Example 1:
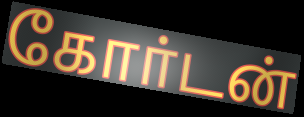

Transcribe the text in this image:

கோர்டன்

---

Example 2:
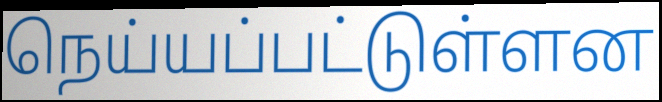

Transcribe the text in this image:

நெய்யப்பட்டுள்ளன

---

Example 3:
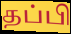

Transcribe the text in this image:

தப்பி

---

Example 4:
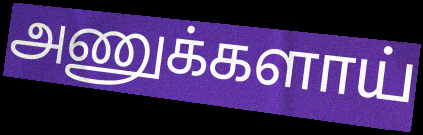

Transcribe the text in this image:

அணுக்களாய்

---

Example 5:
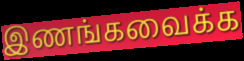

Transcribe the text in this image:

இணங்கவைக்க